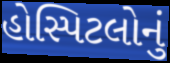
હોસ્પિટલોનું